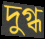
দুগ্ধ